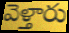
వెళ్తారు